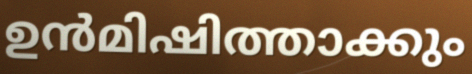
ഉൻമിഷിത്താക്കും